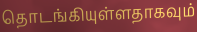
தொடங்கியுள்ளதாகவும்